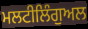
ਮਲਟੀਲਿੰਗੁਅਲ